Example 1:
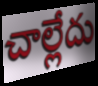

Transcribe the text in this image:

చాల్లేదు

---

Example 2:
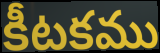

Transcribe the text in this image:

కీటకము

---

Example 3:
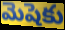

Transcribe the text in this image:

మెషెకు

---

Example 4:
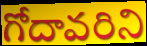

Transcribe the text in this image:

గోదావరిని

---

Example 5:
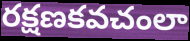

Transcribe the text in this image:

రక్షణకవచంలా